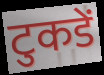
टुकडें